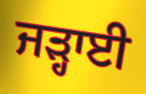
ਜੜ੍ਹਾਈ